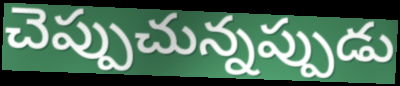
చెప్పుచున్నప్పుడు